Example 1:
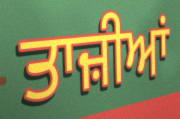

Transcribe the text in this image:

ਤਾਜ਼ੀਆਂ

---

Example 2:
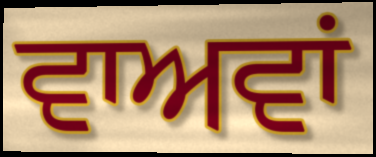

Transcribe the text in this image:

ਵਾਅਵਾਂ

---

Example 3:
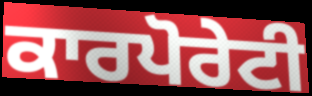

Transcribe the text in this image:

ਕਾਰਪੋਰੇਟੀ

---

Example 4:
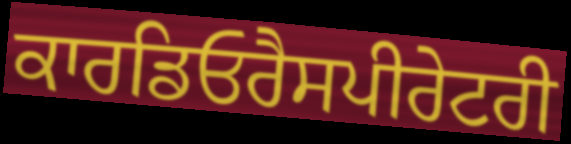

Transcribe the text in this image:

ਕਾਰਡਿਓਰੈਸਪੀਰੇਟਰੀ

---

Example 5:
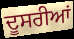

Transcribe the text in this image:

ਦੂਸਰੀਆਂ